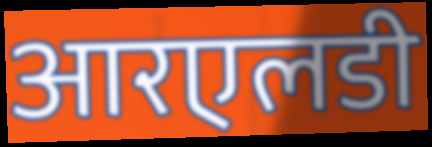
आरएलडी